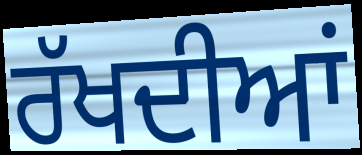
ਰੱਖਦੀਆਂ